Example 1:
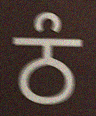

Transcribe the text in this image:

ਠੰ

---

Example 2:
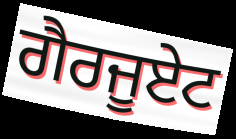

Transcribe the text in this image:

ਗੈਰਜੂਏਟ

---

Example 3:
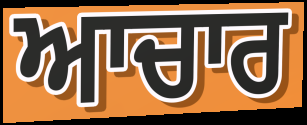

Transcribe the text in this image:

ਆਚਾਰ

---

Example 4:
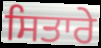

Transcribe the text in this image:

ਸਿਤਾਰੇ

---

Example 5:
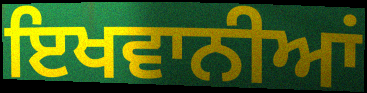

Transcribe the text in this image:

ਇਖਵਾਨੀਆਂ